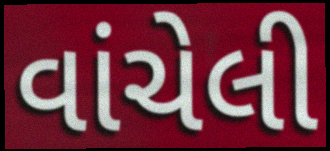
વાંચેલી